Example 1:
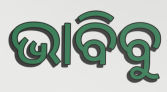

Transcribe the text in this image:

ଭାବିବୁ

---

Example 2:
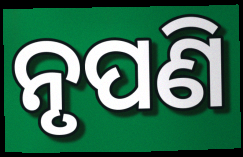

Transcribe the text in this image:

ନୃପଣି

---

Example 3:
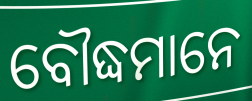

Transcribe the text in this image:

ବୌଦ୍ଧମାନେ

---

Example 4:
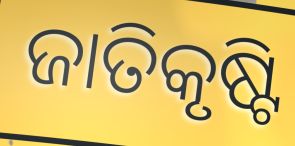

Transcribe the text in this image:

ଜାତିକୃଷ୍ଟି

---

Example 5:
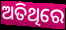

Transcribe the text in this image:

ଅତିଥିରେ